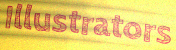
Illustrators